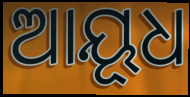
ଆୟୂଧ